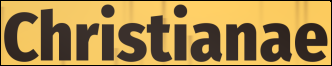
Christianae